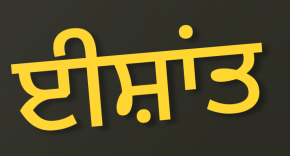
ਈਸ਼ਾਂਤ